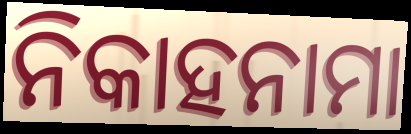
ନିକାହନାମା